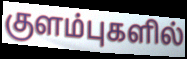
குளம்புகளில்